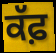
ਕੱਫ਼